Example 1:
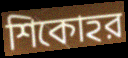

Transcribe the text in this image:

শিকোহর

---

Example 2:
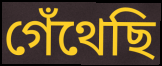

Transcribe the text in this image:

গেঁথেছি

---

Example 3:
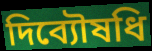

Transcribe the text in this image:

দিব্যৌষধি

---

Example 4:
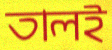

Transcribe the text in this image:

তালই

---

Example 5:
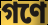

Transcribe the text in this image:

গণে